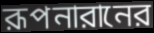
রূপনারানের